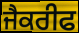
ਜੈਕਰੀਫ